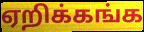
ஏறிக்கங்க